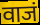
वाजं